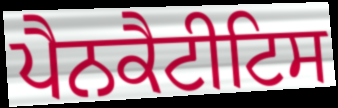
ਪੈਨਕੈਟੀਟਿਸ